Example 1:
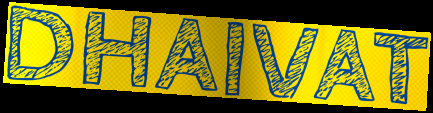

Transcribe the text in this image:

DHAIVAT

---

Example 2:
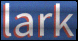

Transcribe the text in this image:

lark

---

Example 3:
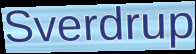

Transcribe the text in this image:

Sverdrup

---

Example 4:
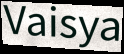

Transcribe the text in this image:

Vaisya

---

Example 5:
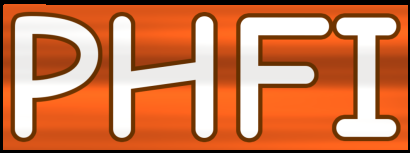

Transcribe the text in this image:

PHFI